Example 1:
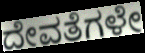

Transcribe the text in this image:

ದೇವತೆಗಳೇ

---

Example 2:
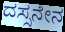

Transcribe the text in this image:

ದಸ್ಸನೇನ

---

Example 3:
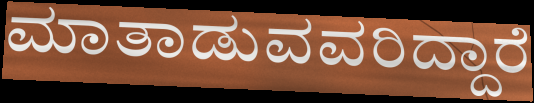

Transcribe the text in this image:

ಮಾತಾಡುವವರಿದ್ದಾರೆ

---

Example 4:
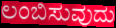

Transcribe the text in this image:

ಲಂಬಿಸುವುದು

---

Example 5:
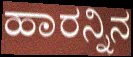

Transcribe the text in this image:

ಹಾರನ್ನಿನ